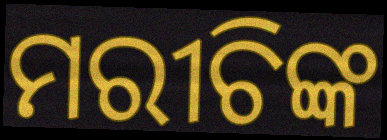
ମରୀଚିଙ୍କ